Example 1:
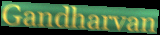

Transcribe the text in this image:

Gandharvan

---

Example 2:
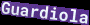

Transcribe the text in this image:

Guardiola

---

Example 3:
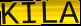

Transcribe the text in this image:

KILA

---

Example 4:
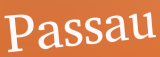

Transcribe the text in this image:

Passau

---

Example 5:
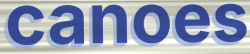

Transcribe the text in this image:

canoes